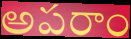
అపరాం